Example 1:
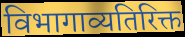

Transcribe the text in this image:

विभागाव्यतिरिक्त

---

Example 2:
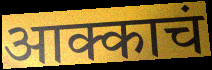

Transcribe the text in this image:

आक्काचं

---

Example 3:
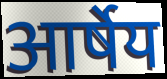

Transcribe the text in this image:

आर्षेय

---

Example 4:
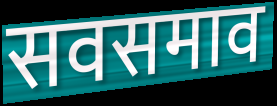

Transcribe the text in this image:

सवसमाव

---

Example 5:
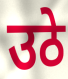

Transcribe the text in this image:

उठे